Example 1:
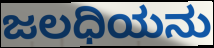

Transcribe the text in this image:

ಜಲಧಿಯನು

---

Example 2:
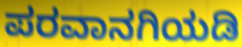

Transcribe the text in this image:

ಪರವಾನಗಿಯಡಿ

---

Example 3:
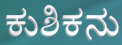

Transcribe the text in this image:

ಕುಶಿಕನು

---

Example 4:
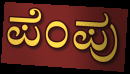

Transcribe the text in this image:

ಪೆಂಪು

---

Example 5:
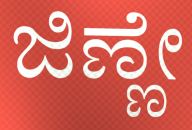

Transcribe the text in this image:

ಜಿಣ್ಣೇ